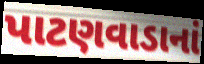
પાટણવાડાનાં